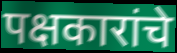
पक्षकारांचे